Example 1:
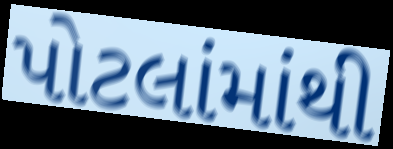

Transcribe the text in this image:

પોટલાંમાંથી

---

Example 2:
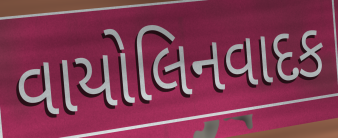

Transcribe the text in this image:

વાયોલિનવાદક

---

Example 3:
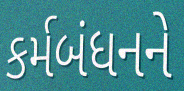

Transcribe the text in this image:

કર્મબંધનને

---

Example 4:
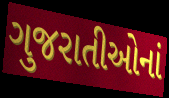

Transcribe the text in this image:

ગુજરાતીઓનાં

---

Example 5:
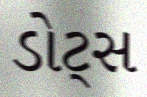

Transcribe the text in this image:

ડોટ્સ